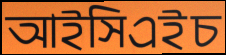
আইসিএইচ